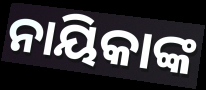
ନାୟିକାଙ୍କ